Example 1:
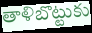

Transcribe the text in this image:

తాళిబొట్టుకు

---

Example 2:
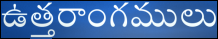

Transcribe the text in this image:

ఉత్తరాంగములు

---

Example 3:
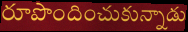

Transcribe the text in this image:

రూపొందించుకున్నాడు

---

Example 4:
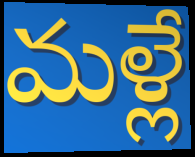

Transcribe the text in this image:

మళ్లే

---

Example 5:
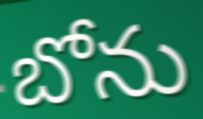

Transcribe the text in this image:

బోను